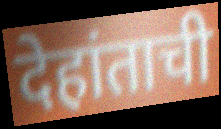
देहांताची